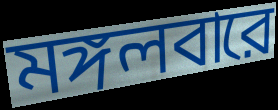
মঙ্গলবারে